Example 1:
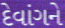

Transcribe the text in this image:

દેવાંગને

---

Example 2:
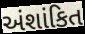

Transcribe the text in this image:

અંશાંકિત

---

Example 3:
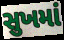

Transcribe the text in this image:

સુખમાં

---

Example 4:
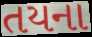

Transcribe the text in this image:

તયના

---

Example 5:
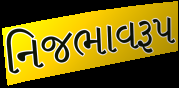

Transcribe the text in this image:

નિજભાવરૂપ